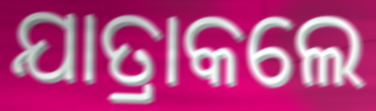
ଯାତ୍ରାକଲେ